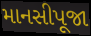
માનસીપૂજા